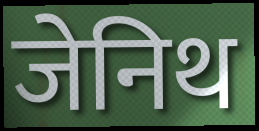
जेनिथ